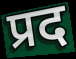
प्रद